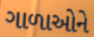
ગાળાઓને